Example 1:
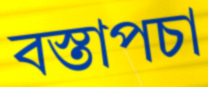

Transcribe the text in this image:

বস্তাপচা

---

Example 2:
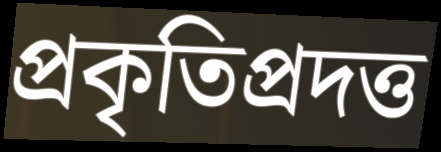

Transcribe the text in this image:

প্রকৃতিপ্রদত্ত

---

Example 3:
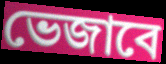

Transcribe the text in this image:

ভেজাবে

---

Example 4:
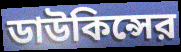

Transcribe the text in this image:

ডাউকিন্সের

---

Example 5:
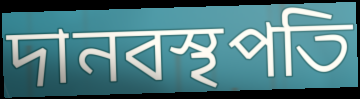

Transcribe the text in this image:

দানবস্থপতি